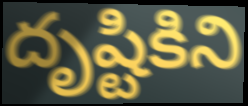
దృష్టికిని